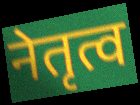
नेतृत्‍व